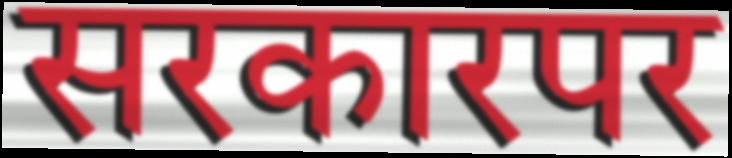
सरकारपर